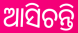
ଆସିଚନ୍ତି